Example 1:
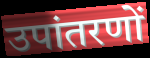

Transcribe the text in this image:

उपांतरणों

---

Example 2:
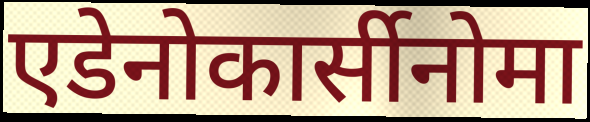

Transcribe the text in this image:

एडेनोकार्सीनोमा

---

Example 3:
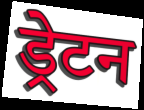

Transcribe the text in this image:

ड्रेटन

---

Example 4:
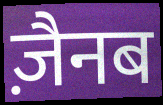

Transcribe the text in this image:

ज़ैनब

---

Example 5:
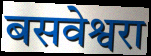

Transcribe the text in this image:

बसवेश्वरा